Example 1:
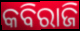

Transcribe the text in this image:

କବିରାଜି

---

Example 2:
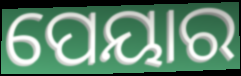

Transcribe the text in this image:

ପେୟାର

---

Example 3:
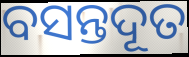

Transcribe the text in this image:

ବସନ୍ତଦୂତ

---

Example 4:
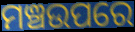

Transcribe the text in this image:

ମଞ୍ଚଉପରେ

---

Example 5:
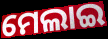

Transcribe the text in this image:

ମେଲାଇ